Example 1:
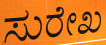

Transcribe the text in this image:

ಸುರೇಖ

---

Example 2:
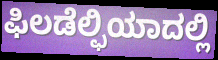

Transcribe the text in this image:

ಫಿಲಡೆಲ್ಫಿಯಾದಲ್ಲಿ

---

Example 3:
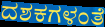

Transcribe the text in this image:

ದಶಕಗಳಂತೆ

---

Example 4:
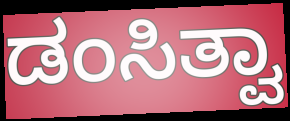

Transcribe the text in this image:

ಡಂಸಿತ್ವಾ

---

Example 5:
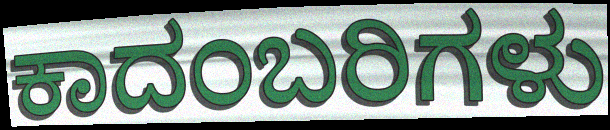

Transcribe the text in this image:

ಕಾದಂಬರಿಗಳು